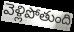
వెళ్లిపోతుంది